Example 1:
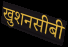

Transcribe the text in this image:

खुशनसीबी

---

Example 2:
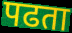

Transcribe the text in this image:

पढता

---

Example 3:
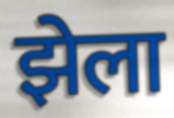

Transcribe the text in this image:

झेला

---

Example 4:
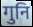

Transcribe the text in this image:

गुनि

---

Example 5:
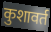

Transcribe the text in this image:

कुशावर्त